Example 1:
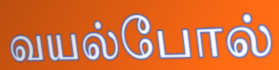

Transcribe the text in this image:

வயல்போல்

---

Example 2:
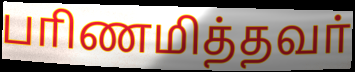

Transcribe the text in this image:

பரிணமித்தவர்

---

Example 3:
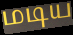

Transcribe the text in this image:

மடிய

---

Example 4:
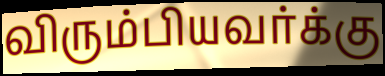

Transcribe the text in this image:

விரும்பியவர்க்கு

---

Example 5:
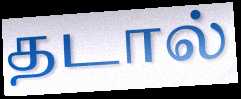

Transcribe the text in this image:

தடால்